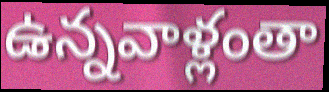
ఉన్నవాళ్లంతా